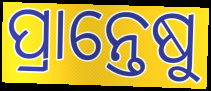
ପ୍ରାନ୍ତେଷୁ